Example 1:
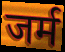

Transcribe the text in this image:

जर्म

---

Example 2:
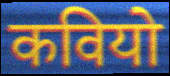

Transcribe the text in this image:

कवियो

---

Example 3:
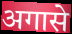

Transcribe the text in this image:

अगासे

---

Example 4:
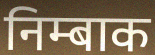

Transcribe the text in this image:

निम्बाक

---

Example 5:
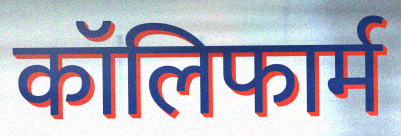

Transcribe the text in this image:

कॉलिफार्म